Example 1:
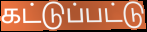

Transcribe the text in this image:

கட்டுப்பட்டு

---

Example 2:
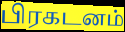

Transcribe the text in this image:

பிரகடனம்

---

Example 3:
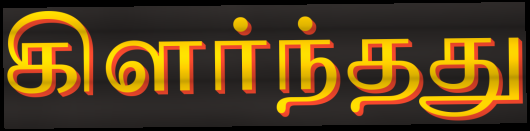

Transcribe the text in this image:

கிளர்ந்தது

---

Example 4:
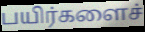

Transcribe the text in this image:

பயிர்களைச்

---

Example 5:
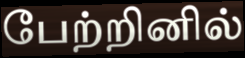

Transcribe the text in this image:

பேற்றினில்